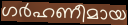
ഗർഹണീമായ